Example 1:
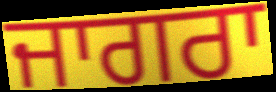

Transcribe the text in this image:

ਜਾਗਰਾ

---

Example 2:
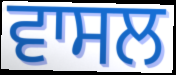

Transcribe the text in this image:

ਵਾਸਲ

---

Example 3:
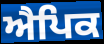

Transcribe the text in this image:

ਐਪਿਕ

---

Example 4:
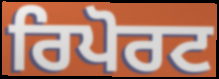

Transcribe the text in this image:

ਰਿਪੋਰਟ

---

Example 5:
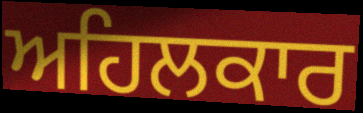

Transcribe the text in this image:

ਅਹਿਲਕਾਰ